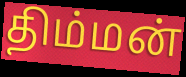
திம்மன்